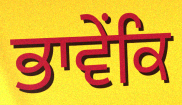
ਭਾਵੇਂਕਿ